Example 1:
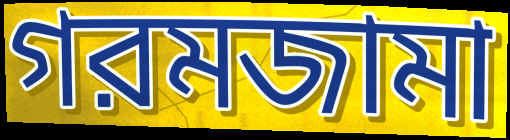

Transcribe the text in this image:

গরমজামা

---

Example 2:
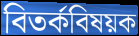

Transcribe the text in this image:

বিতর্কবিষয়ক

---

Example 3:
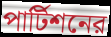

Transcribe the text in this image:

পার্টিশনের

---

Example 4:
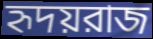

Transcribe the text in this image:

হৃদয়রাজ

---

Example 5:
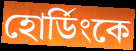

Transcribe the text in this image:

হোর্ডিংকে